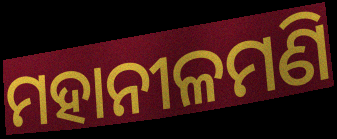
ମହାନୀଳମଣି